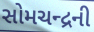
સોમચન્દ્રની